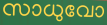
സാധുവോ